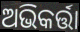
ଅଭିକର୍ତ୍ତା